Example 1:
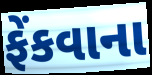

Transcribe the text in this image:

ફેંકવાના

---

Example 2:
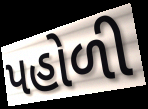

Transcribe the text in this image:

પહોળી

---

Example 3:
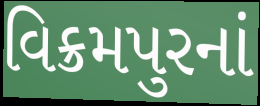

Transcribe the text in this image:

વિક્રમપુરનાં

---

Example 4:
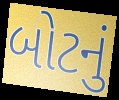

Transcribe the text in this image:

બોટનું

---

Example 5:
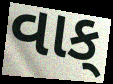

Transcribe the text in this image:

વાક્